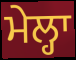
ਮੇਲ੍ਹਾ